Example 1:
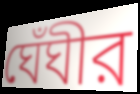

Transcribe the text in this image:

ঘেঁঘীর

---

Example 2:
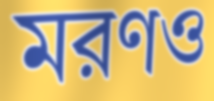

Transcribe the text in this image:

মরণও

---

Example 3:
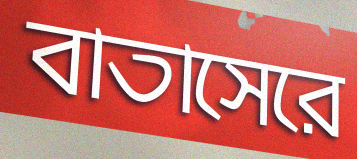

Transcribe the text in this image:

বাতাসেরে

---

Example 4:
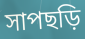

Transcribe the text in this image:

সাপছড়ি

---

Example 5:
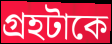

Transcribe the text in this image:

গ্রহটাকে